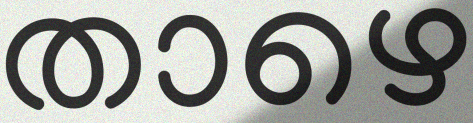
താഴെ